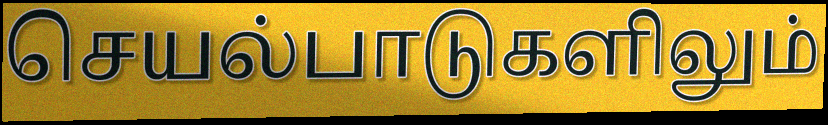
செயல்பாடுகளிலும்